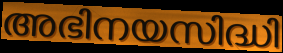
അഭിനയസിദ്ധി